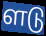
ளடு